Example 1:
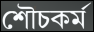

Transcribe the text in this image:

শৌচকর্ম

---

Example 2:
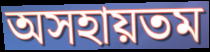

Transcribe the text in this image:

অসহায়তম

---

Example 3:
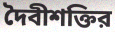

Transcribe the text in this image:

দৈবীশক্তির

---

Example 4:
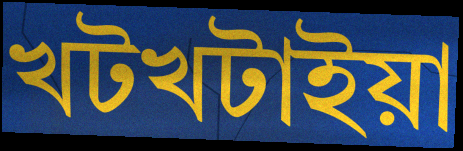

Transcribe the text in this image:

খটখটাইয়া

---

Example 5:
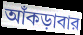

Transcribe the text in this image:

আঁকড়াবার